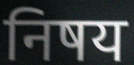
निषय